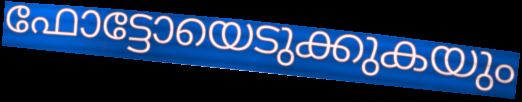
ഫോട്ടോയെടുക്കുകയും